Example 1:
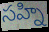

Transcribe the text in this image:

సహ్ని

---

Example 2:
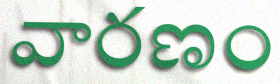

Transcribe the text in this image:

వారణం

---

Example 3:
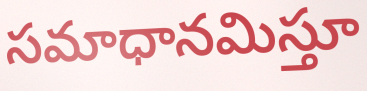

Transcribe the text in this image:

సమాధానమిస్తూ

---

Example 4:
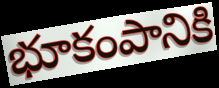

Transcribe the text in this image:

భూకంపానికి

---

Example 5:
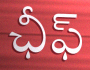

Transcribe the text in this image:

ఛీఫ్